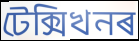
টেক্সিখনৰ